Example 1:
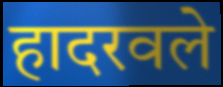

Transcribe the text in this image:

हादरवले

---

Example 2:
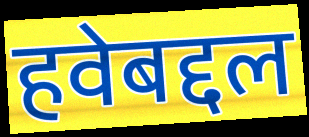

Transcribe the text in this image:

हवेबद्दल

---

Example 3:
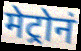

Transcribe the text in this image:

मेट्रोनं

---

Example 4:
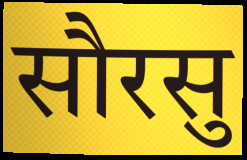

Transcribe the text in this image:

सौरसु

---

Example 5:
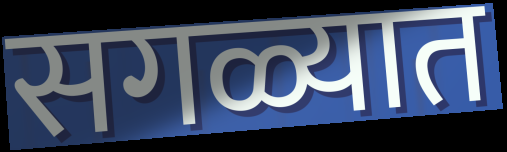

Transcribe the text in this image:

सगळ्यात